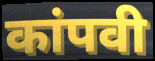
कांपवी